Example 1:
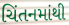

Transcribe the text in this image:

ચિંતનમાંથી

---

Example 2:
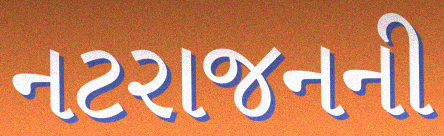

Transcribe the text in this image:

નટરાજનની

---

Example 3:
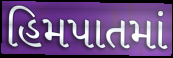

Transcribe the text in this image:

હિમપાતમાં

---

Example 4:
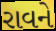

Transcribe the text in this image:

રાવને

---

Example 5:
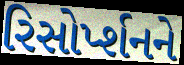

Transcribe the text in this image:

રિસોર્પ્શનને